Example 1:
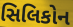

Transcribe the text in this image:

સિલિકોન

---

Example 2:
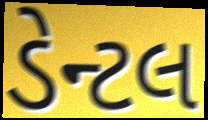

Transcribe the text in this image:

ડેન્ટલ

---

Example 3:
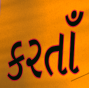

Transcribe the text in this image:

કરતાઁ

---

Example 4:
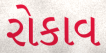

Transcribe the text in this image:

રોકાવ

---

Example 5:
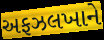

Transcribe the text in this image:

અફઝલખાને